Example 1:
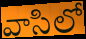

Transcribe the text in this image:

వాసిలో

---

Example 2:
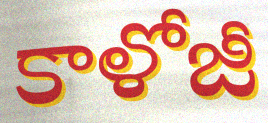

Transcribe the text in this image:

కాళోజీ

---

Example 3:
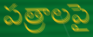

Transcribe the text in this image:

పత్రాలపై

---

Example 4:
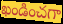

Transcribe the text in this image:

ఖండించగా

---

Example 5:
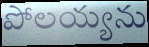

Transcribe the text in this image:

పోలయ్యను